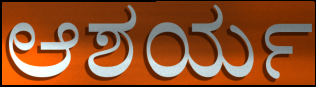
ಆಶರ್ಯ